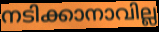
നടിക്കാനാവില്ല